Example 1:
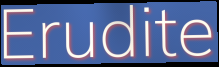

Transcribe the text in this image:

Erudite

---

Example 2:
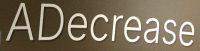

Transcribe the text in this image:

ADecrease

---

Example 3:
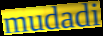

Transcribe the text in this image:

mudadi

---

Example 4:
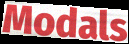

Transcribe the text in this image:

Modals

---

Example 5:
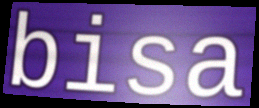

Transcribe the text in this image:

bisa